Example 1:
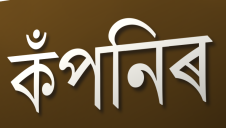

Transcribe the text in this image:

কঁপনিৰ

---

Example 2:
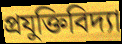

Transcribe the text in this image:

প্ৰযুক্তিবিদ্যা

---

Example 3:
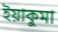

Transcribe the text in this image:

ইয়াকুমা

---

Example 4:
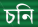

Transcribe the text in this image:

চনি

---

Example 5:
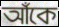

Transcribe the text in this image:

আঁকে